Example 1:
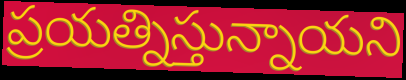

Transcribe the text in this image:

ప్రయత్నిస్తున్నాయని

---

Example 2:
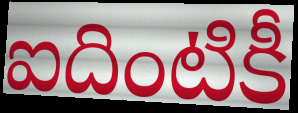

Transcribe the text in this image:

ఐదింటికీ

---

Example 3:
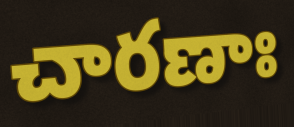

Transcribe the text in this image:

చారణాః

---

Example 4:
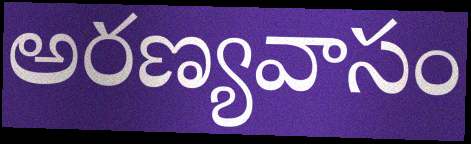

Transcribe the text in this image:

అరణ్యవాసం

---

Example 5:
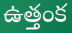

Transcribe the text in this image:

ఉత్తంక